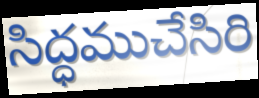
సిద్ధముచేసిరి